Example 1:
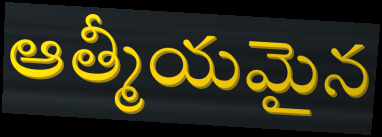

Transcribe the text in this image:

ఆత్మీయమైన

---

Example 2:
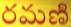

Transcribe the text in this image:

రమణి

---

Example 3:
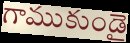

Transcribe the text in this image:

గాముకుండై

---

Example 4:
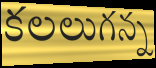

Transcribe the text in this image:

కలలుగన్న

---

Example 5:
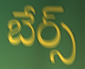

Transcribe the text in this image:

బేర్స్